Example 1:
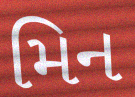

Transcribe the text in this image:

મિન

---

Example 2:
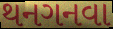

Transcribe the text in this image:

થનગનવા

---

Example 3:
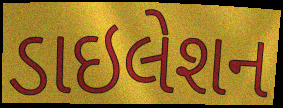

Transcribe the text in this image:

ડાઇલેશન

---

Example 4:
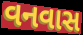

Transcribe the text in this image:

વનવાસ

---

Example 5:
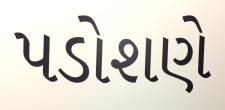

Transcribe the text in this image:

પડોશણે